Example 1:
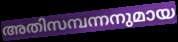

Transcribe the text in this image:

അതിസമ്പന്നനുമായ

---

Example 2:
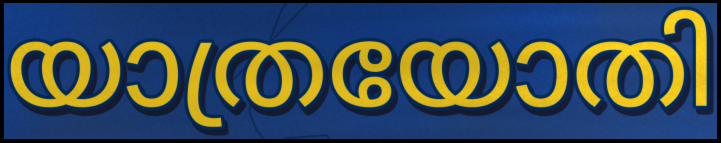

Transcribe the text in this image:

യാത്രയോതി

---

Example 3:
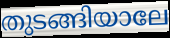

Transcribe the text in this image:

തുടങ്ങിയാലേ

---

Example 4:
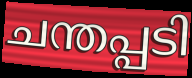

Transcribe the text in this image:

ചന്തപ്പടി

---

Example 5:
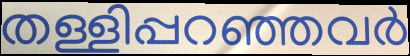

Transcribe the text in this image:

തള്ളിപ്പറഞ്ഞവർ